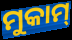
ମୁକାମ୍